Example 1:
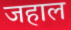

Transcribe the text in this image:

जहाल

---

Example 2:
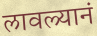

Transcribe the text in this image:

लावल्यानं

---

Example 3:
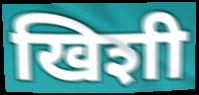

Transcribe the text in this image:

खिशी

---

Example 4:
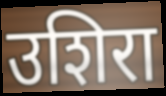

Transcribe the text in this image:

उशिरा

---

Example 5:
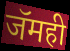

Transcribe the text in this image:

जॅमही